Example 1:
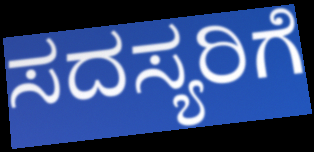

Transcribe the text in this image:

ಸದಸ್ಯರಿಗೆ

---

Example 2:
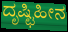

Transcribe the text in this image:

ದೃಷ್ಟಿಹೀನ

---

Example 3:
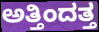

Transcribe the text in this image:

ಅತ್ತಿಂದತ್ತ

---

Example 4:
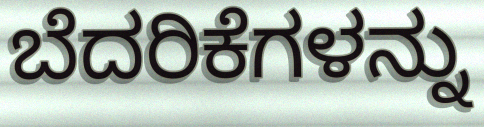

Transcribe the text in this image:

ಬೆದರಿಕೆಗಳನ್ನು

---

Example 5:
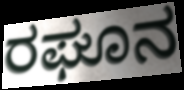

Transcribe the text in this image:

ರಘೂನ